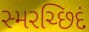
સ્મરચ્છિદં